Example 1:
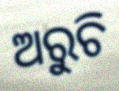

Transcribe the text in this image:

ଅରୁଚି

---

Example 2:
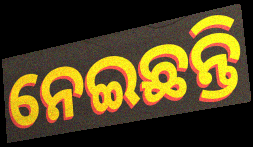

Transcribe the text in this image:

ନେଇଛନ୍ତି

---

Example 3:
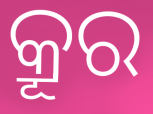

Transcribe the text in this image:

କ୍ରୂର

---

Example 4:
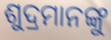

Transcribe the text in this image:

ଶୁଦ୍ରମାନଙ୍କୁ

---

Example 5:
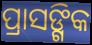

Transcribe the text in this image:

ପ୍ରାସଙ୍ଗିକ